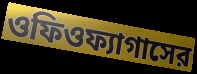
ওফিওফ্যাগাসের